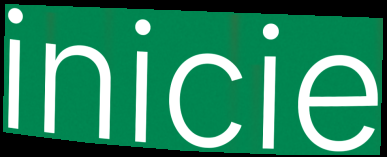
inicie